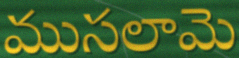
ముసలామె